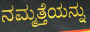
ನಮ್ಮತ್ತೆಯನ್ನು